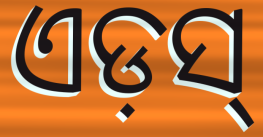
ଏଡ଼ସ୍